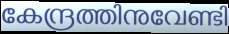
കേന്ദ്രത്തിനുവേണ്ടി